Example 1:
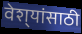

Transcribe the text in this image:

वेश्यांसाठी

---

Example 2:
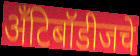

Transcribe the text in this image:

अँटिबॉडीजचे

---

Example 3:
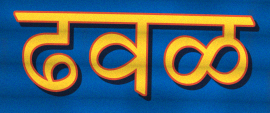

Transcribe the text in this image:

ढवळ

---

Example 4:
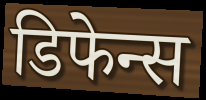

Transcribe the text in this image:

डिफेन्स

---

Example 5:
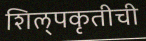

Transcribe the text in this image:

शिल्पकृतीची